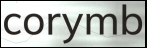
corymb